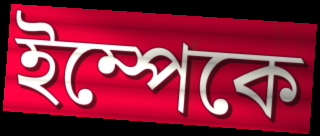
ইম্পেকে